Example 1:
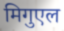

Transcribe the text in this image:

मिगुएल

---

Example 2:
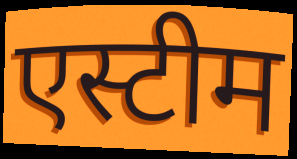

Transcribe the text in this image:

एस्टीम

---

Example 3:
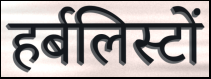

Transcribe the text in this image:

हर्बलिस्टों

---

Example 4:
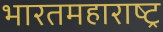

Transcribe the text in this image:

भारतमहाराष्ट्र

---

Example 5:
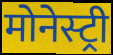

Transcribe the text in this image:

मोनेस्‍ट्री